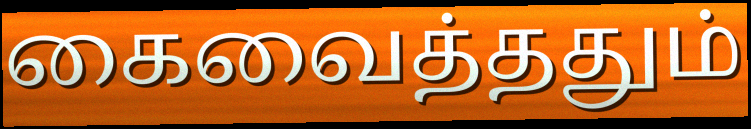
கைவைத்ததும்